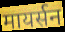
मायर्सन